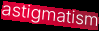
astigmatism